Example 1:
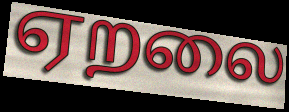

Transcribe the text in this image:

ஏறலை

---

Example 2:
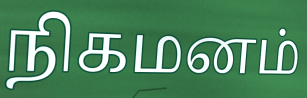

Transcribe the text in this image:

நிகமனம்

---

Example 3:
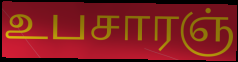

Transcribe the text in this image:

உபசாரஞ்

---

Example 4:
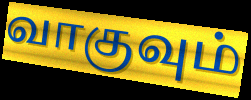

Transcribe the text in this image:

வாகுவும்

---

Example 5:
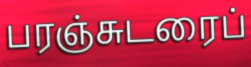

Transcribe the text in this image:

பரஞ்சுடரைப்